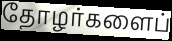
தோழர்களைப்